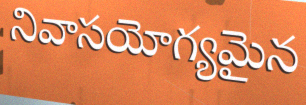
నివాసయోగ్యమైన